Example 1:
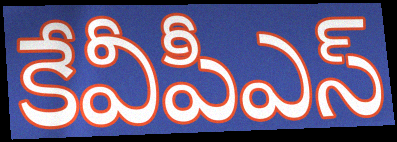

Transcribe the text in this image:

కేవీపీఎస్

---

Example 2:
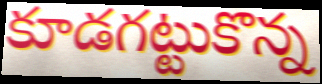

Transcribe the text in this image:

కూడగట్టుకొన్న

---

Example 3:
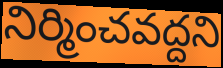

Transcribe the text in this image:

నిర్మించవద్దని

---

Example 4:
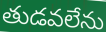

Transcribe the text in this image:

తుడవలేను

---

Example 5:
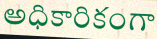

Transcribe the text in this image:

అధికారికంగా